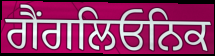
ਗੈਂਗਲਿਓਨਿਕ